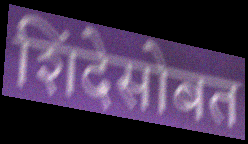
शिंदेसोबत